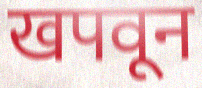
खपवून